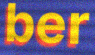
ber